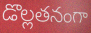
డొల్లతనంగా